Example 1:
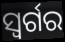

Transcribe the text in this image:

ସ୍ୱର୍ଗର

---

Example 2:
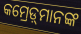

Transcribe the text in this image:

କମ୍ରେଡ଼୍‌ମାନଙ୍କ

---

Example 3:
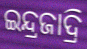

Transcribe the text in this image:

ଇନ୍ଦ୍ରଜାଦ୍ରି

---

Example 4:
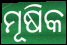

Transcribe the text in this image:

ମୂଷିକ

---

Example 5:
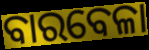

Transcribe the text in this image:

ବାରବେଳା